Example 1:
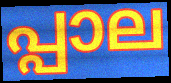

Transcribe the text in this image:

പ്പാല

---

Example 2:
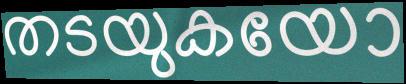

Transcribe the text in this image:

തടയുകയോ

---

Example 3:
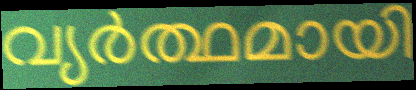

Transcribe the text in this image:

വ്യർത്ഥമായി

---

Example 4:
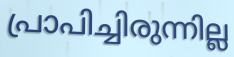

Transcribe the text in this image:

പ്രാപിച്ചിരുന്നില്ല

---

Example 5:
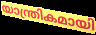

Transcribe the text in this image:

യാന്ത്രികമായി